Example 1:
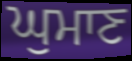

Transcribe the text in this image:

ਘੁਮਾਣ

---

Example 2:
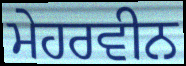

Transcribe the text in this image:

ਮੇਹਰਵੀਨ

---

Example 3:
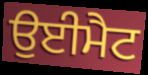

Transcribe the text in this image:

ਉਈਮੈਟ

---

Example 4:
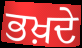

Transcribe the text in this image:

ਭਖ਼ਦੇ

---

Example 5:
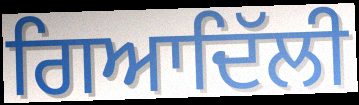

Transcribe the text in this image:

ਗਿਆਦਿੱਲੀ